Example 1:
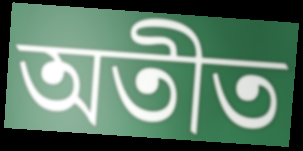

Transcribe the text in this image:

অতীত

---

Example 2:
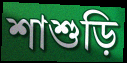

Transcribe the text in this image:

শাশুড়ি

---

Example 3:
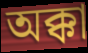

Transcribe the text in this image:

অক্কা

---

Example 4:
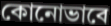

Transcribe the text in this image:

কোনোভাবে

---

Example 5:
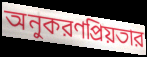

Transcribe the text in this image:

অনুকরণপ্রিয়তার